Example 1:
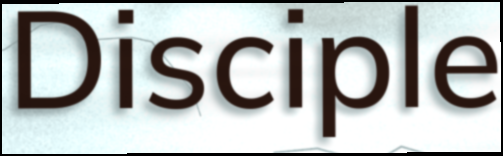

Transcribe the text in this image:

Disciple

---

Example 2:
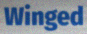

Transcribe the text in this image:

Winged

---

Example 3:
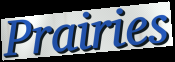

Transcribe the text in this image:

Prairies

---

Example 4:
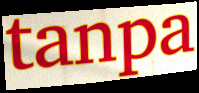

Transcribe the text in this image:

tanpa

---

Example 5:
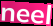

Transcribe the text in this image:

neel